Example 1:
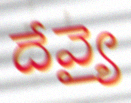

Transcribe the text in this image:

దేవ్యై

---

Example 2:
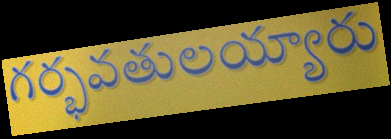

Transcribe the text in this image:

గర్భవతులయ్యారు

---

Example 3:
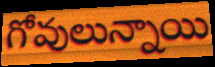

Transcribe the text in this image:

గోవులున్నాయి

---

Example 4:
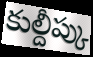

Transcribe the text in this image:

కుల్దీప్కు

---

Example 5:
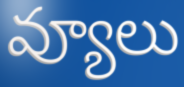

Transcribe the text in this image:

వ్యూలు